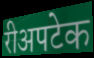
रीअपटेक